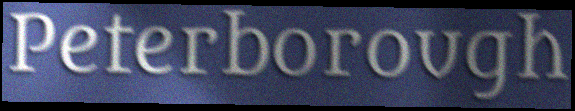
Peterborough